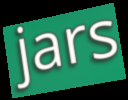
jars